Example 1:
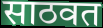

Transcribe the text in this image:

साठवत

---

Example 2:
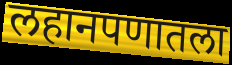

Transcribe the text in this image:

लहानपणातला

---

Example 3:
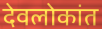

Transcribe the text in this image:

देवलोकांत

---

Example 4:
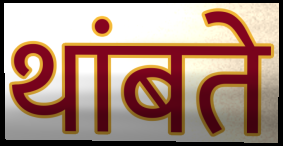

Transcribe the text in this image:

थांबते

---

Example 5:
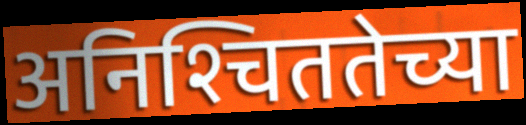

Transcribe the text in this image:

अनिश्चिततेच्या